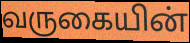
வருகையின்